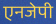
एनजेपी